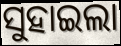
ସୁହାଇଲା